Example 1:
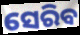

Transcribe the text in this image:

ସେରିବ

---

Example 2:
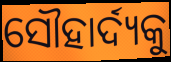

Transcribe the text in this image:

ସୌହାର୍ଦ୍ୟକୁ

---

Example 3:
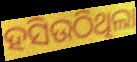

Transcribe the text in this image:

ହସିଉଠିଥିଲା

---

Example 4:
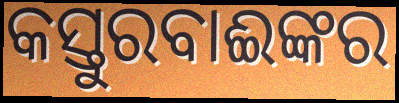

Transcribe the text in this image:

କସ୍ତୁରବାଈଙ୍କର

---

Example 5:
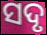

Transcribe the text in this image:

ସଦୃ